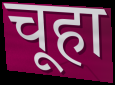
चूहा